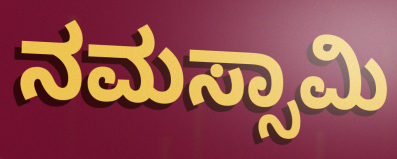
ನಮಸ್ಸಾಮಿ